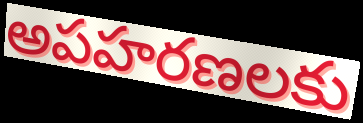
అపహరణలకు